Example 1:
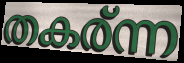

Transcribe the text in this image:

തകര്ന്ന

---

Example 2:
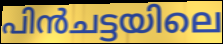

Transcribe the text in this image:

പിൻചട്ടയിലെ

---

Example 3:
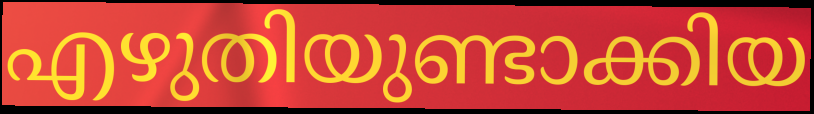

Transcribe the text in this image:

എഴുതിയുണ്ടാക്കിയ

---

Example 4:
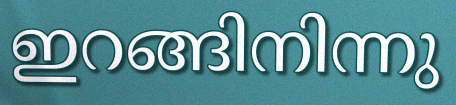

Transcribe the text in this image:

ഇറങ്ങിനിന്നു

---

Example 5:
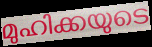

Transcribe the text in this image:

മുഹിക്കയുടെ